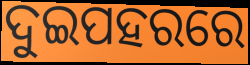
ଦୁଇପହରରେ